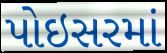
પોઇસરમાં